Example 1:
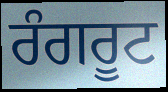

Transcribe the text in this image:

ਰੰਗਰੂਟ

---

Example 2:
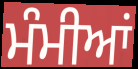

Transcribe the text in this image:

ਮੰਮੀਆਂ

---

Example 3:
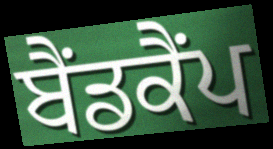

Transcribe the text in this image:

ਬੈਂਡਕੈਂਪ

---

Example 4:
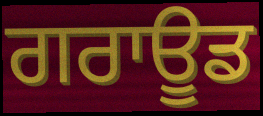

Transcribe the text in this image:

ਗਰਾਊਡ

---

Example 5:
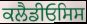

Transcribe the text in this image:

ਕਲੈਡੀਓਸਿਸ